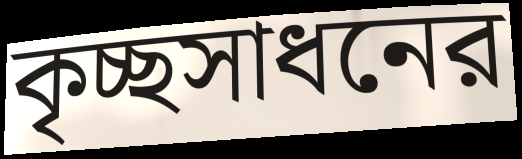
কৃচ্ছসাধনের